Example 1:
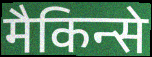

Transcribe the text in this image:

मैकिन्से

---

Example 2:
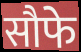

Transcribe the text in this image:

सौफे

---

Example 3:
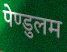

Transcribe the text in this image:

पेण्डुलम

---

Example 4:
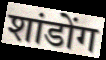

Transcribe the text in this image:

शांडोंग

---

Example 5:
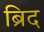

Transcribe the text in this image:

ब्रिद